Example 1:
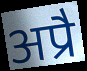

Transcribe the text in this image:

अप्रै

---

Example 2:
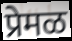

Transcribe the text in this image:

प्रेमळ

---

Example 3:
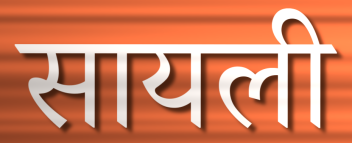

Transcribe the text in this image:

सायली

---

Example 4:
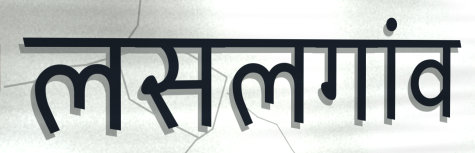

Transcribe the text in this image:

लसलगांव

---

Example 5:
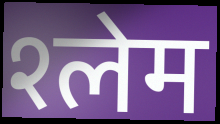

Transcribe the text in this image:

श्लेम